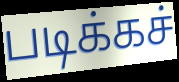
படிக்கச்